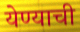
येण्याची